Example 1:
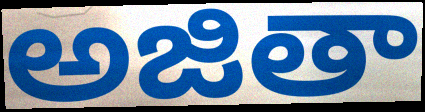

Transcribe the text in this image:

అజితా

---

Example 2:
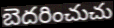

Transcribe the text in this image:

బెదరించుచు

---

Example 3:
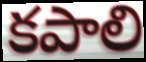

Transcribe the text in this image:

కపాలి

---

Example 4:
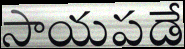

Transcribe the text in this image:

సాయపడే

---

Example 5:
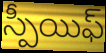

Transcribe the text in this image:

స్పీయిఫ్